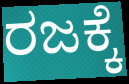
ರಜಕ್ಕೆ